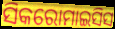
ସିକରୋମାଇସିସ